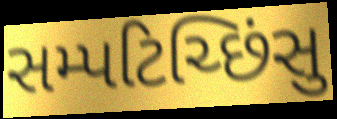
સમ્પટિચ્છિંસુ